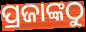
ପ୍ରଜାଙ୍କଠୁ